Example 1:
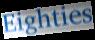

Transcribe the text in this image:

Eighties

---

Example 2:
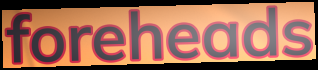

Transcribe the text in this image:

foreheads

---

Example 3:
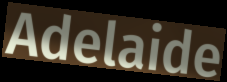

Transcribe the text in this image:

Adelaide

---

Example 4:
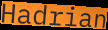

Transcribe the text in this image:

Hadrian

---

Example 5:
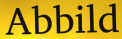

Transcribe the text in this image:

Abbild